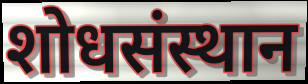
शोधसंस्थान